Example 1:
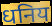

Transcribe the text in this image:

धनिय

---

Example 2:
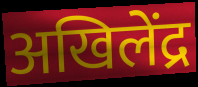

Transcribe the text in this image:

अखिलेंद्र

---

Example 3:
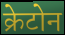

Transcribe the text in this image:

क्रेटोन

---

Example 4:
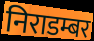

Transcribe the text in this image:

निराडम्बर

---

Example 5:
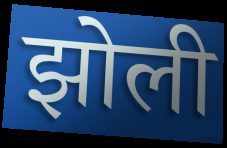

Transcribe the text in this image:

झोली